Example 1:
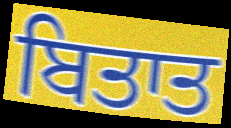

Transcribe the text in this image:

ਬਿਤਾਤ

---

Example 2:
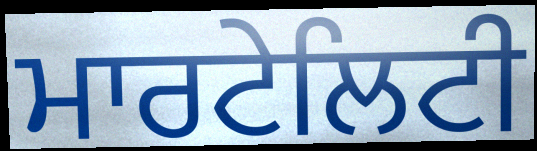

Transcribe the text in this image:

ਮਾਰਟੇਲਿਟੀ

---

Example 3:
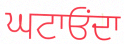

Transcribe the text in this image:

ਘਟਾਓਂਦਾ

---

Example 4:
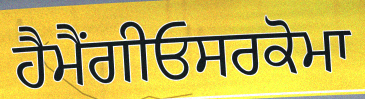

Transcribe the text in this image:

ਹੈਮੈਂਗੀਓਸਰਕੋਮਾ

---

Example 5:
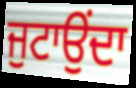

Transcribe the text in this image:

ਜੁਟਾਉਂਦਾ